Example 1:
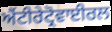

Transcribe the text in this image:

ਐਂਟੀਰੇਟ੍ਰੋਵਾਈਰਲ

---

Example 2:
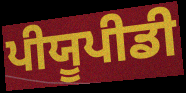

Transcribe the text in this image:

ਪੀਯੂਪੀਡੀ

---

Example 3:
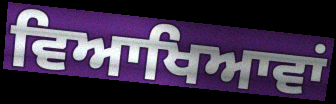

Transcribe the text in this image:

ਵਿਆਖਿਆਵਾਂ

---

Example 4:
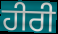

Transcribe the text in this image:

ਹੀਰੀ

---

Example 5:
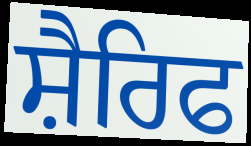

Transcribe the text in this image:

ਸ਼ੈਰਿਫ